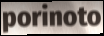
porinoto